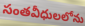
సంతవీధులలోను